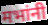
मभांनी